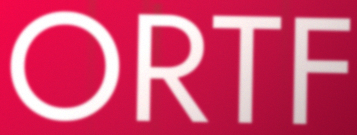
ORTF